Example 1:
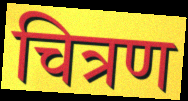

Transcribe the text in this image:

चित्रण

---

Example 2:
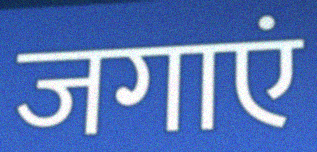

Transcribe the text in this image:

जगाएं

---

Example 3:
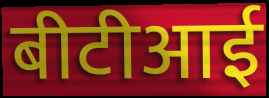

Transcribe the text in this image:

बीटीआई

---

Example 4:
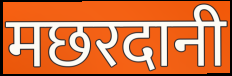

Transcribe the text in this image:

मछरदानी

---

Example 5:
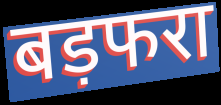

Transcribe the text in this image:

बड़फरा